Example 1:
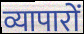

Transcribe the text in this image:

व्यापारों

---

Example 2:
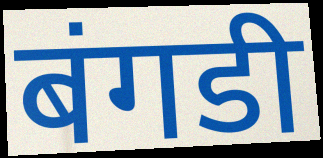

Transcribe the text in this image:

बंगडी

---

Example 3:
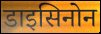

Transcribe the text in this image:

डाइसिनोन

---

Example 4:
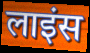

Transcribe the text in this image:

लाइंस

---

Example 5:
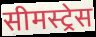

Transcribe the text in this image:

सीमस्ट्रेस